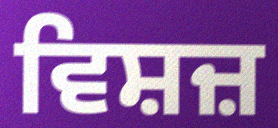
ਵਿਸ਼ਜ਼